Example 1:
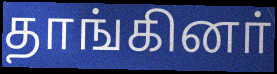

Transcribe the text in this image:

தாங்கினர்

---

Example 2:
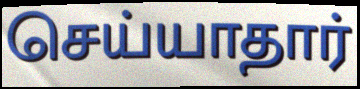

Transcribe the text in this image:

செய்யாதார்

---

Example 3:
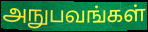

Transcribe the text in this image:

அநுபவங்கள்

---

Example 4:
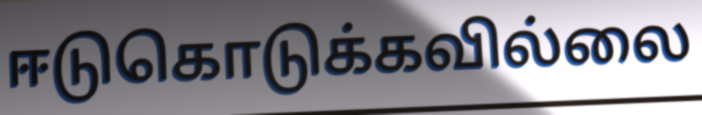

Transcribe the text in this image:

ஈடுகொடுக்கவில்லை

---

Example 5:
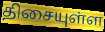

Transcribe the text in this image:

திசையுள்ள